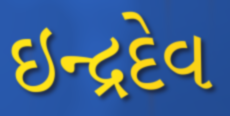
ઇન્દ્રદેવ